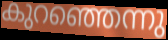
കുറഞ്ഞെന്നു